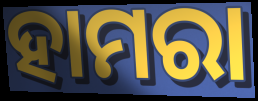
ହାମରା